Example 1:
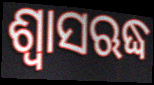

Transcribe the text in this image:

ଶ୍ୱାସଋଦ୍ଧ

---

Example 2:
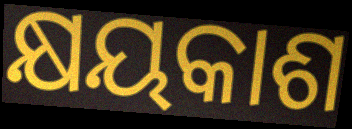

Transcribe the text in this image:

କ୍ଷୟକାଶ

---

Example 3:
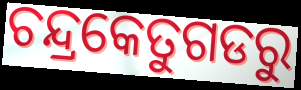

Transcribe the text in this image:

ଚନ୍ଦ୍ରକେତୁଗଡରୁ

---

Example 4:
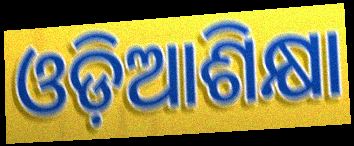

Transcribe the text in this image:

ଓଡ଼ିଆଶିକ୍ଷା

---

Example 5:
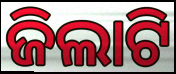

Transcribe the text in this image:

ଜିଲାଟି